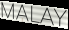
MALAY